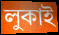
লুকাই